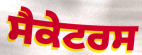
ਸੈਕੇਟਰਸ